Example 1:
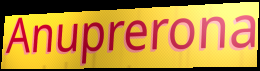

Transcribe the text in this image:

Anuprerona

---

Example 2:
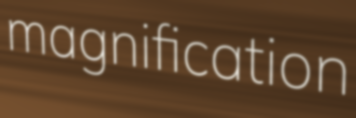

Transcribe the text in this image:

magnification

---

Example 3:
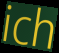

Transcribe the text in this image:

ich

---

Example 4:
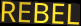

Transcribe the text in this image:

REBEL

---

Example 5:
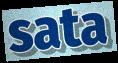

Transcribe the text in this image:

sata